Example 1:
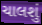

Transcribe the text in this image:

ચાલશું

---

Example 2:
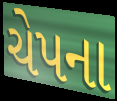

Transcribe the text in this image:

ચેપના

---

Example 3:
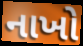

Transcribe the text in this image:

નાખો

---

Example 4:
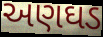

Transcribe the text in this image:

અણઘડ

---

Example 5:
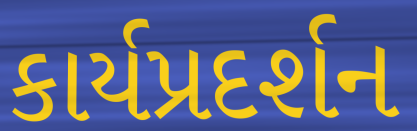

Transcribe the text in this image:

કાર્યપ્રદર્શન